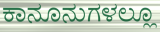
ಕಾನೂನುಗಳಲ್ಲೂ